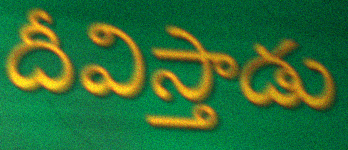
దీవిస్తాడు